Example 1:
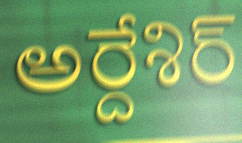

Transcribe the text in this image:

అర్దేశిర్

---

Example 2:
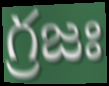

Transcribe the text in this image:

గ్రజః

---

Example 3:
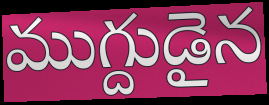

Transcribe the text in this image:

ముగ్దుడైన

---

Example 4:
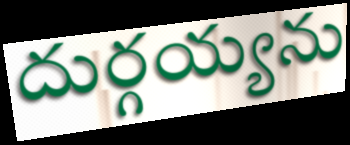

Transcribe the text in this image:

దుర్గయ్యను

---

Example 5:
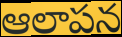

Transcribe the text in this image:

ఆలాపన